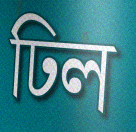
ঢিল